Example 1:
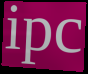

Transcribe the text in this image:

ipc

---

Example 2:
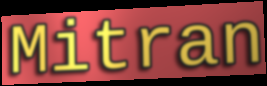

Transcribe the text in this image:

Mitran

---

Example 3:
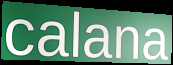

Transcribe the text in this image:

calana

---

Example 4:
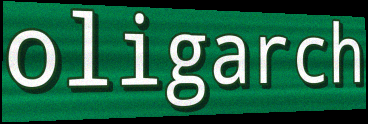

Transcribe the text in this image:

oligarch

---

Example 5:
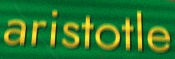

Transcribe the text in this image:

aristotle